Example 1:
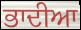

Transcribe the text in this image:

ਭਾਦੀਆ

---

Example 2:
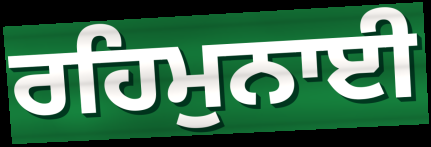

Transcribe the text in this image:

ਰਹਿਮੁਨਾਈ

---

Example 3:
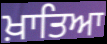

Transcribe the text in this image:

ਖ਼ਾਤਿਆ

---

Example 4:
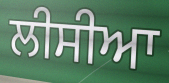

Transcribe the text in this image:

ਲੀਸੀਆ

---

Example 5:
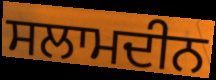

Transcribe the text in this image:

ਸਲਾਮਦੀਨ